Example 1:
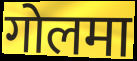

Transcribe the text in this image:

गोलमा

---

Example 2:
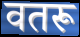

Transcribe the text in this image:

वतरू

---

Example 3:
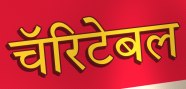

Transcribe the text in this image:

चॅरिटेबल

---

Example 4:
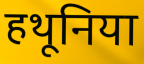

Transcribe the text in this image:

हथूनिया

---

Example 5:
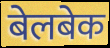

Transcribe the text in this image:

बेलबेक